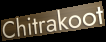
Chitrakoot